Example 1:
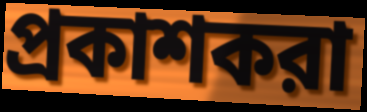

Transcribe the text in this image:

প্রকাশকরা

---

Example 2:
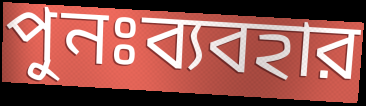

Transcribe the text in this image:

পুনঃব্যবহার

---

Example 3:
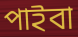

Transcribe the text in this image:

পাইবা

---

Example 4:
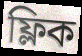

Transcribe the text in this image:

ফ্লিক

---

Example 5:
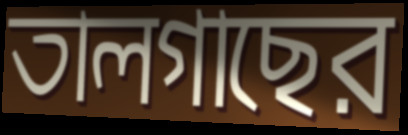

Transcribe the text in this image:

তালগাছের